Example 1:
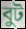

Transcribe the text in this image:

বুট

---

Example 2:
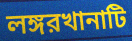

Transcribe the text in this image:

লঙ্গরখানাটি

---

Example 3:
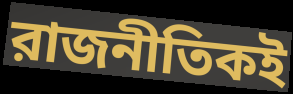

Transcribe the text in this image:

রাজনীতিকই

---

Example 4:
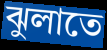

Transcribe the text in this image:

ঝুলাতে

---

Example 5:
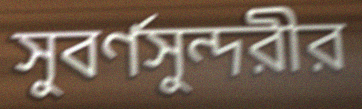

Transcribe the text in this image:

সুবর্ণসুন্দরীর